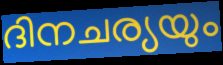
ദിനചര്യയും